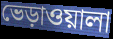
ভেড়াওয়ালা